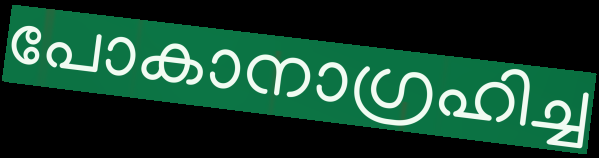
പോകാനാഗ്രഹിച്ച